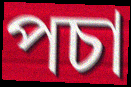
পচা